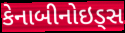
કેનાબીનોઇડ્સ